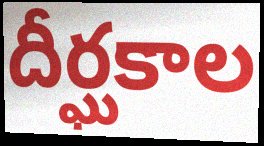
దీర్ఘకాల